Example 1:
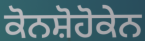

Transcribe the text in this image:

ਕੋਨਸ਼ੋਹੋਕੇਨ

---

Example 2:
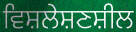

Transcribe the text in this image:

ਵਿਸ਼ਲੇਸ਼ਣਸ਼ੀਲ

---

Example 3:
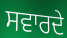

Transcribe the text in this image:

ਸਵਾਰਦੇ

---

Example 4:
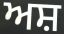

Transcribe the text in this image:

ਅਸ਼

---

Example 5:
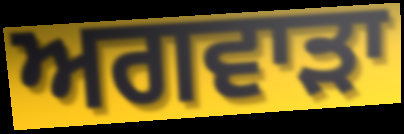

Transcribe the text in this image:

ਅਗਵਾੜਾ